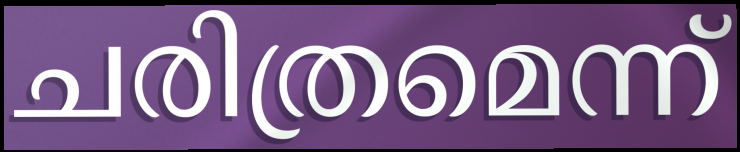
ചരിത്രമെന്ന്